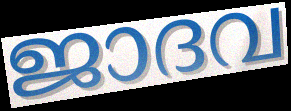
ജാദവ